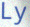
Ly